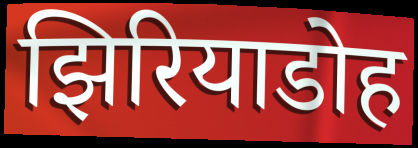
झिरियाडोह